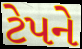
ટેપને